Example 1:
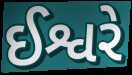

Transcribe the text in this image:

ઈશ્વરે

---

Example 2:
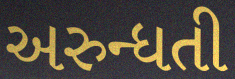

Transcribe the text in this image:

અરુન્ધતી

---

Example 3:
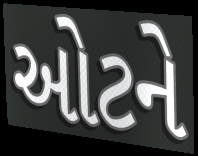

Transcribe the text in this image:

ઓટને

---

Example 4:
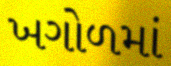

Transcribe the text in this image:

ખગોળમાં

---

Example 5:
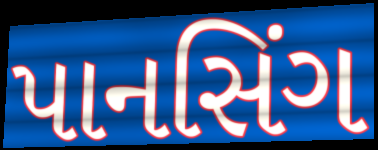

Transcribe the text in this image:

પાનસિંગ